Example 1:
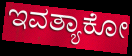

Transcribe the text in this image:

ಇವತ್ಯಾಕೋ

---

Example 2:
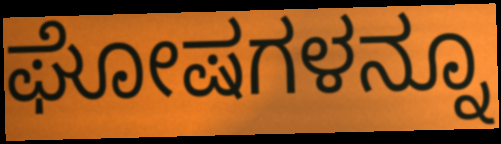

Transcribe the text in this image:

ಘೋಷಗಳನ್ನೂ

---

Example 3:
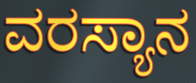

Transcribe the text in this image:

ವರಸ್ಯಾನ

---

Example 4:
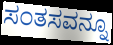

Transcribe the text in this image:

ಸಂತಸವನ್ನೂ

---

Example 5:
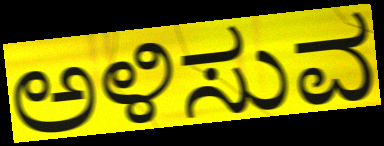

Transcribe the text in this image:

ಅಳಿಸುವ